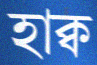
হাক্ব